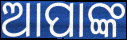
ଆପାଙ୍କ